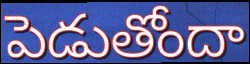
పెడుతోందా